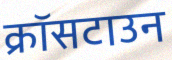
क्रॉसटाउन